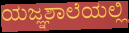
ಯಜ್ಞಶಾಲೆಯಲ್ಲಿ